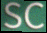
SC